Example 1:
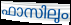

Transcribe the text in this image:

ഫാസിലും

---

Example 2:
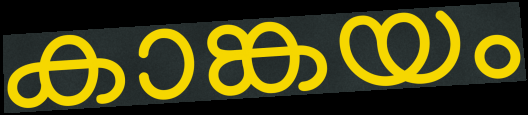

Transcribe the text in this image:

കാങ്കയം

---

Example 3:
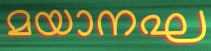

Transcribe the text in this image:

മയാനഘ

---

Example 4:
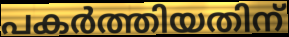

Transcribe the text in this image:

പകർത്തിയതിന്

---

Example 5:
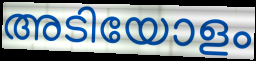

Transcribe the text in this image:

അടിയോളം